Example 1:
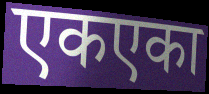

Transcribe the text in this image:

एकएका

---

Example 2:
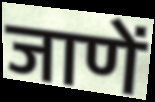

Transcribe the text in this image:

जाणें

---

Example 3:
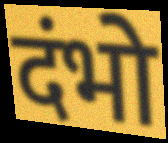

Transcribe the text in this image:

दंभो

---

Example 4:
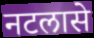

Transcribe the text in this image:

नटलासे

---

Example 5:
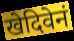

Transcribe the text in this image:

खेदिवेनं